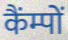
कैंम्पों